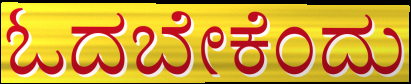
ಓದಬೇಕೆಂದು